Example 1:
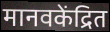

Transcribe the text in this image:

मानवकेंद्रित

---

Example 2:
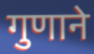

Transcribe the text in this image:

गुणाने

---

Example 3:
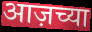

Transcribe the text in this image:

आज़च्या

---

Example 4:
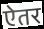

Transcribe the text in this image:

ऐतर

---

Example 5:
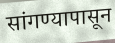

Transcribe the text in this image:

सांगण्यापासून